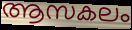
ആസകലം